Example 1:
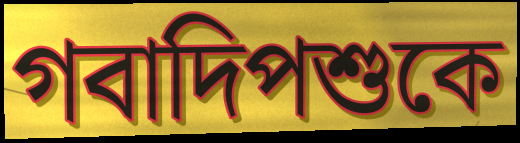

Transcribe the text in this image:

গবাদিপশুকে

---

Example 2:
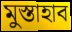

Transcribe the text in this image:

মুস্তাহাব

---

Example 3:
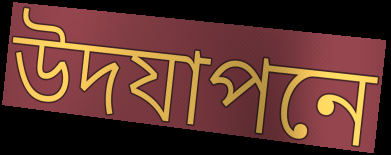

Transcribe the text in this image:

উদযাপনে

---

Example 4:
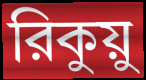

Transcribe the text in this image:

রিকুয়ু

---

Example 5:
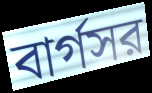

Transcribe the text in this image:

বার্গসর